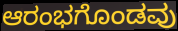
ಆರಂಭಗೊಂಡವು